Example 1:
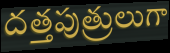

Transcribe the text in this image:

దత్తపుత్రులుగా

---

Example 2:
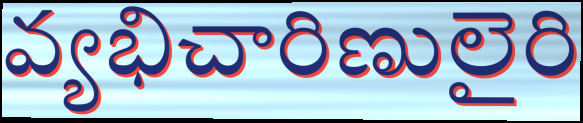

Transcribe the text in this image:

వ్యభిచారిణులైరి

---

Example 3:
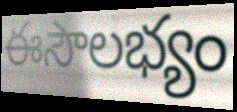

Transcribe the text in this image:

ఈసౌలభ్యం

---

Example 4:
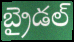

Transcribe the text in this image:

బ్రైడల్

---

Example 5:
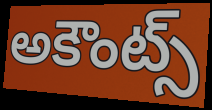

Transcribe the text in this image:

అకౌంట్స్